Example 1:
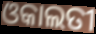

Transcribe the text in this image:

ଓକାଲତୀ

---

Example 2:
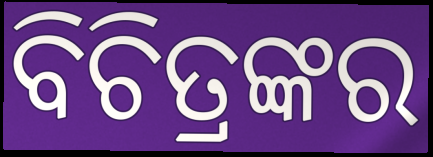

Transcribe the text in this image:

ବିଚିତ୍ରଙ୍କର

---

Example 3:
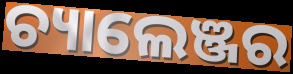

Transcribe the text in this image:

ଚ୍ୟାଲେଞ୍ଜର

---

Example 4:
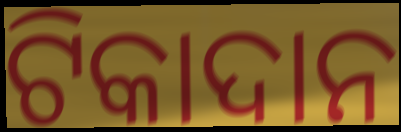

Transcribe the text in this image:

ଟିକାଦାନ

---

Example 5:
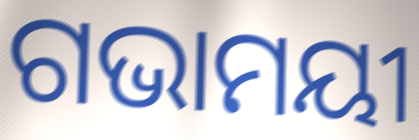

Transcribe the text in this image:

ଗଭାମୟୀ